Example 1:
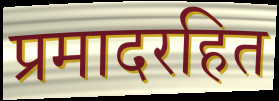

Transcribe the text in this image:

प्रमादरहित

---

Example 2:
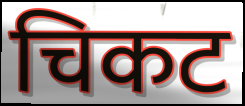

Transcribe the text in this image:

चिकट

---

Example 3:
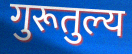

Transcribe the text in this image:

गुरूतुल्य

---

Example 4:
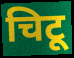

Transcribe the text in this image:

चिटू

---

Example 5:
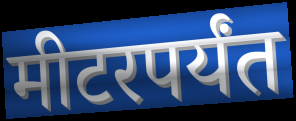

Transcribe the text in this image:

मीटरपर्यंत